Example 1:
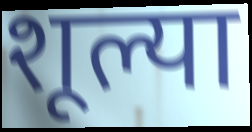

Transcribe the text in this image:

शूल्या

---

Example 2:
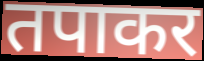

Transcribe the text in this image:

तपाकर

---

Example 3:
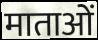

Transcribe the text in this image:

माताओं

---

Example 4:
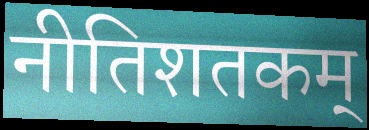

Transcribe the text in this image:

नीतिशतकम्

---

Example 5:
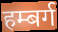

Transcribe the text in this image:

हम्बर्ग